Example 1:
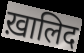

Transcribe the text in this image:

ख़ालिद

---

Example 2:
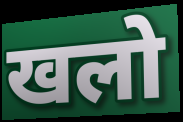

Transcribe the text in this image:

खलो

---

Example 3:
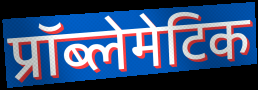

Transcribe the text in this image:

प्रॉब्लेमेटिक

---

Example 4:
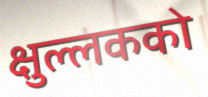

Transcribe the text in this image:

क्षुल्लकको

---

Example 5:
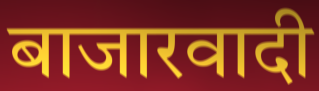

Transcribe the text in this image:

बाजारवादी